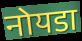
नोयडा